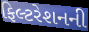
ફિલ્ટરેશનની